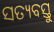
ସତ୍ୟବସ୍ତୁ